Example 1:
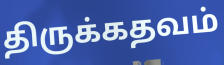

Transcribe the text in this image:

திருக்கதவம்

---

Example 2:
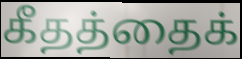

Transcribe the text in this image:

கீதத்தைக்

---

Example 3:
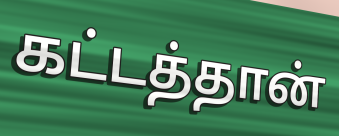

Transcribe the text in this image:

கட்டத்தான்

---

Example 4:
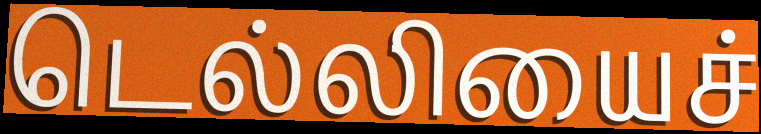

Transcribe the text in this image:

டெல்லியைச்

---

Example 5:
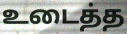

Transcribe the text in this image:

உடைத்த